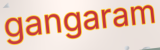
gangaram